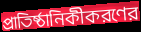
প্রাতিষ্ঠানিকীকরণের